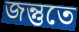
জন্তুতে